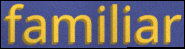
familiar